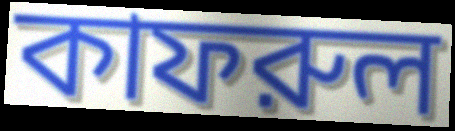
কাফরুল